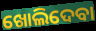
ଖୋଲିଦେବା